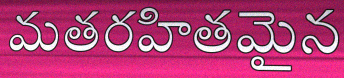
మతరహితమైన